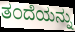
ತಂದೆಯನ್ನು